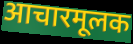
आचारमूलक